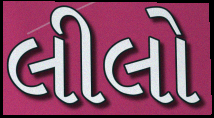
લીલો